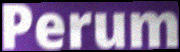
Perum